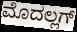
ಮೊದಲ್ಲಗ್